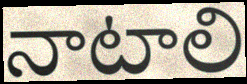
నాటాలి